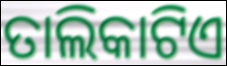
ତାଲିକାଟିଏ